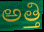
అత్తి